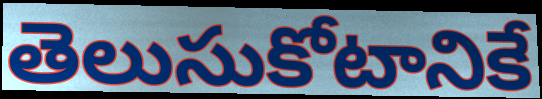
తెలుసుకోటానికే